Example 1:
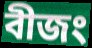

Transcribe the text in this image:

বীজং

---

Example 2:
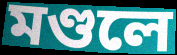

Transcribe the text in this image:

মণ্ডলে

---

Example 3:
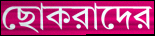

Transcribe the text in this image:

ছোকরাদের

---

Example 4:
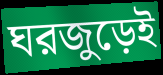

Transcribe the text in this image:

ঘরজুড়েই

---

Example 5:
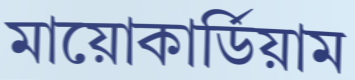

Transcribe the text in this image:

মায়োকার্ডিয়াম